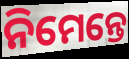
ନିମେନ୍ତେ